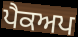
ਪੈਕਅਪ